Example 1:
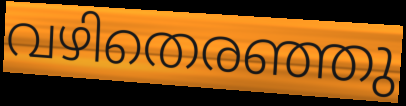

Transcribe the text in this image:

വഴിതെരഞ്ഞു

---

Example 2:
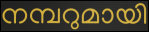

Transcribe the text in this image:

നമ്പറുമായി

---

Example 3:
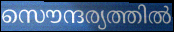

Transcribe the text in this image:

സൌന്ദര്യത്തിൽ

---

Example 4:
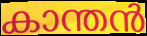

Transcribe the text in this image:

കാന്തൻ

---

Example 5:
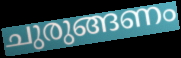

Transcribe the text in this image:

ചുരുങ്ങണം